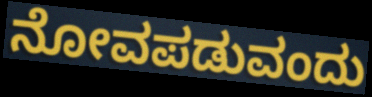
ನೋವಪಡುವಂದು